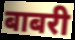
बाबरी